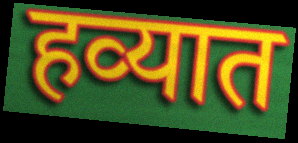
हव्‍यात